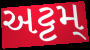
અટ્ટમ્